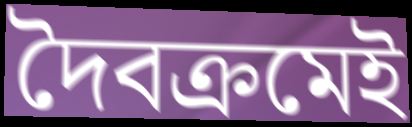
দৈবক্রমেই